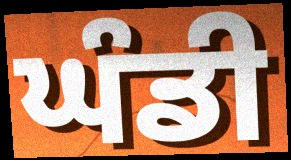
ਘੰਡੀ